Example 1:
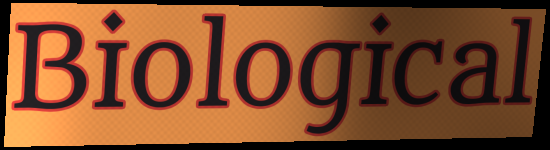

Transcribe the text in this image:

Biological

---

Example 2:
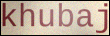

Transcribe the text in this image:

khubaj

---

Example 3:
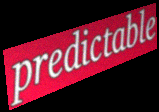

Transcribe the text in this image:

predictable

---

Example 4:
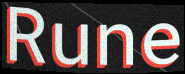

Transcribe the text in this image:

Rune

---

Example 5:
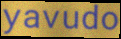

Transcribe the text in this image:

yavudo